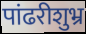
पांढरीशुभ्र